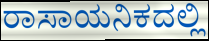
ರಾಸಾಯನಿಕದಲ್ಲಿ